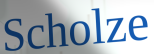
Scholze